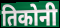
तिकोनी